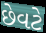
છેવટે